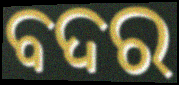
ବଦର